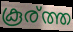
കൂര്ത്ത